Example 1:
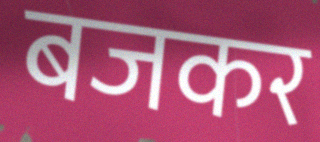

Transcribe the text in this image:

बजकर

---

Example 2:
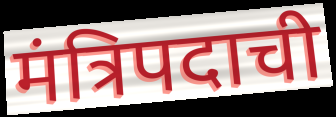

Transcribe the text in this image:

मंत्रिपदाची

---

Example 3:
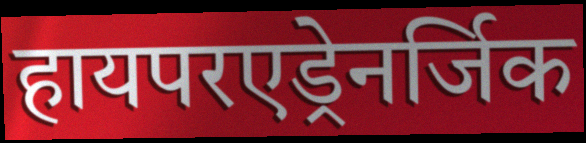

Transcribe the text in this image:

हायपरएड्रेनर्जिक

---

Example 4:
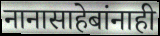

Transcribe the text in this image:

नानासाहेबांनाही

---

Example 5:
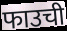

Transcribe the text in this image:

फाउची